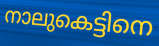
നാലുകെട്ടിനെ